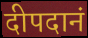
दीपदानं